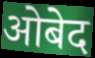
ओबेद